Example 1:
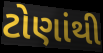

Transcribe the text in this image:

ટોણાંથી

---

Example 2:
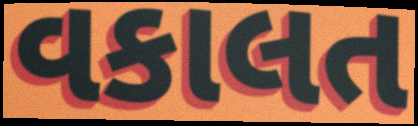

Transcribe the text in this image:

વકાલત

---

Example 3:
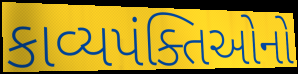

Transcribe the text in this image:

કાવ્યપંક્તિઓનો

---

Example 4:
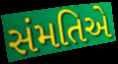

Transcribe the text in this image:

સંમતિએ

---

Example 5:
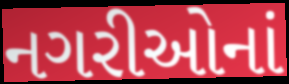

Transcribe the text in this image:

નગરીઓનાં